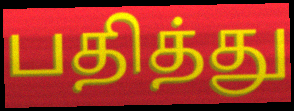
பதித்து